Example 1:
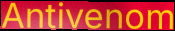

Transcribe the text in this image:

Antivenom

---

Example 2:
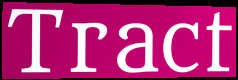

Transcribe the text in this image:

Tract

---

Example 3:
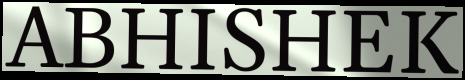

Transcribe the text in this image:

ABHISHEK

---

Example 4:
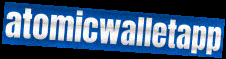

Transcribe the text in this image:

atomicwalletapp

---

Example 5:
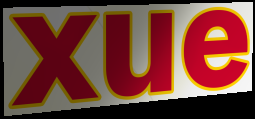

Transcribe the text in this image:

xue